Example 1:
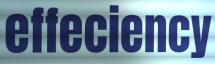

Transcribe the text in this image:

effeciency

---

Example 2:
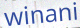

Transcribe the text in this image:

winani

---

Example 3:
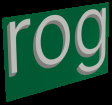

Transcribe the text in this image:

rog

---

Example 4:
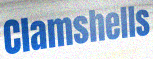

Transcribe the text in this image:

Clamshells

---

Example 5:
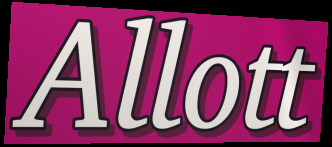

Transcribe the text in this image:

Allott